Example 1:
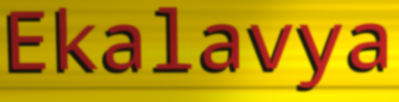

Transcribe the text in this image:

Ekalavya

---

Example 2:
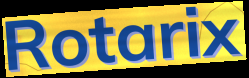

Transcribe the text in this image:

Rotarix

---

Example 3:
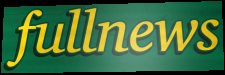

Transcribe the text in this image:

fullnews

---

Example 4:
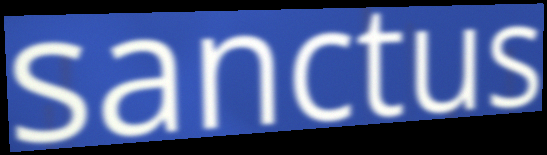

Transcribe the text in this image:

sanctus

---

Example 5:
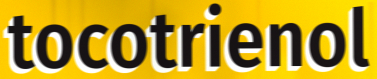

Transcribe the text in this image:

tocotrienol